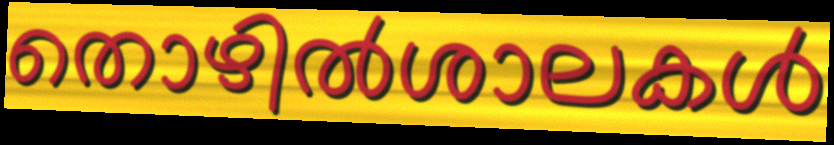
തൊഴിൽശാലകൾ